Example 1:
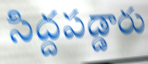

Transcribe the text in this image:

సిద్దపడ్డారు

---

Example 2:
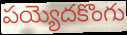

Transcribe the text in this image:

పయ్యెదకొంగు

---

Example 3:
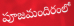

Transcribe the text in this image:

పూజమందిరంలో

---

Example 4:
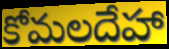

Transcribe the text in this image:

కోమలదేహా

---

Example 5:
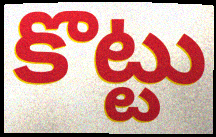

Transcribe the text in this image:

కొట్టు